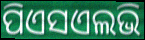
ପିଏସଏଲଭି